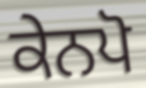
ਕੇਨਪੋ